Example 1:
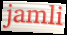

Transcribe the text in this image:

jamli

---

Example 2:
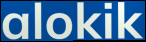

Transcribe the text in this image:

alokik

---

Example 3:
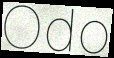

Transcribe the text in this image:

Odo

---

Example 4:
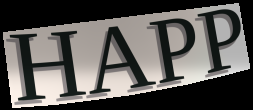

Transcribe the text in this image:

HAPP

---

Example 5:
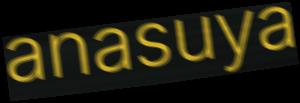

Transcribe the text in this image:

anasuya